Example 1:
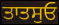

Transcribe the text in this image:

ਤਾਤਸੁਓ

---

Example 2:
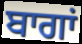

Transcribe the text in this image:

ਬਾਗਾਂ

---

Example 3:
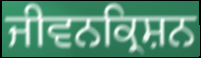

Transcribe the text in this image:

ਜੀਵਨਕ੍ਰਿਸ਼ਨ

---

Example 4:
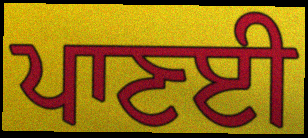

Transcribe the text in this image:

ਪਾਣਈ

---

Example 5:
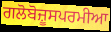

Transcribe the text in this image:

ਗਲੋਬੋਜ਼ੂਸਪਰਮੀਆ